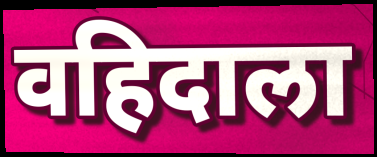
वहिदाला